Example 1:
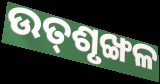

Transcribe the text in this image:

ଉତ୍‌ଶୃଙ୍ଖଳ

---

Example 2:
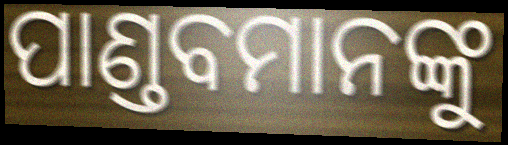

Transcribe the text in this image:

ପାଣ୍ଡବମାନଙ୍କୁ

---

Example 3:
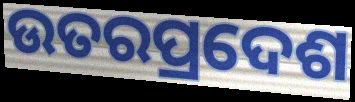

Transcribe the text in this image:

ଉତରପ୍ରଦେଶ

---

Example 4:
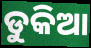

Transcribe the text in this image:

ଡୁକିଆ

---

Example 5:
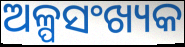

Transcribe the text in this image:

ଅଳ୍ପସଂଖ୍ୟକ